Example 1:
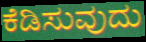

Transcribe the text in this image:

ಕೆಡಿಸುವುದು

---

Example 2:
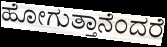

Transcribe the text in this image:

ಹೋಗುತ್ತಾನೆಂದರೆ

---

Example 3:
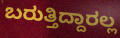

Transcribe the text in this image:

ಬರುತ್ತಿದ್ದಾರಲ್ಲ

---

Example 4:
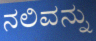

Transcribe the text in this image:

ನಲಿವನ್ನು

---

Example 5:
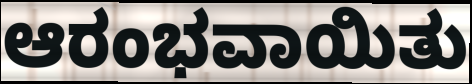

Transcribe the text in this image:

ಆರಂಭವಾಯಿತು